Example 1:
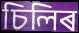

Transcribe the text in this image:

চিলিৰ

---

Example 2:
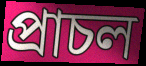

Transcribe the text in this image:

প্ৰাচল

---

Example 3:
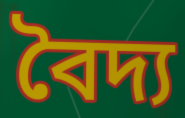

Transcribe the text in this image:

বৈদ্য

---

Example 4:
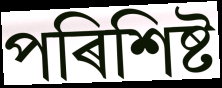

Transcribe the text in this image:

পৰিশিষ্ট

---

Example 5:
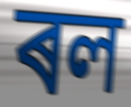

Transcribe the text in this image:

ৰল